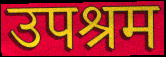
उपश्रम